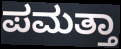
ಪಮತ್ತಾ